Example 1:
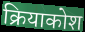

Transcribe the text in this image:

क्रियाकोश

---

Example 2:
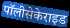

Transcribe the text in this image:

पॉलीसेकेराइड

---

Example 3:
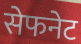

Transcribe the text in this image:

सेफनेट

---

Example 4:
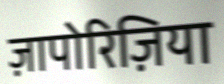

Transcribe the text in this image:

ज़ापोरिज़िया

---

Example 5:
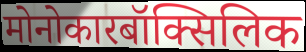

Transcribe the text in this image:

मोनोकारबॉक्सिलिक